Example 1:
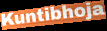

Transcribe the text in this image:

Kuntibhoja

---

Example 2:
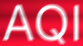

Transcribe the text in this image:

AQI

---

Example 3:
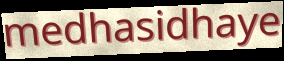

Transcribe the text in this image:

medhasidhaye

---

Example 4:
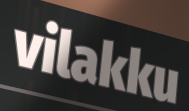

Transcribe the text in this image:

vilakku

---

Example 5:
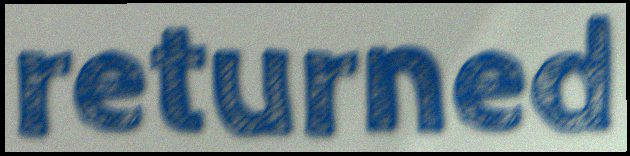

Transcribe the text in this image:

returned